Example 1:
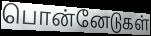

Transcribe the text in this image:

பொன்னேடுகள்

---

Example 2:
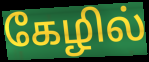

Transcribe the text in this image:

கேழில்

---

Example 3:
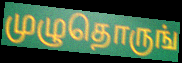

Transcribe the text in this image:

முழுதொருங்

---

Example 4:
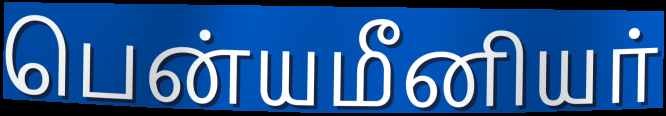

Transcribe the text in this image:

பென்யமீனியர்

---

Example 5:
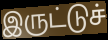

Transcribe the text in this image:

இருட்டுச்